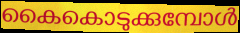
കൈകൊടുക്കുമ്പോൾ